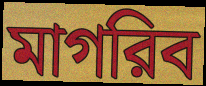
মাগরিব